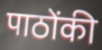
पाठोंकी